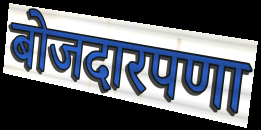
बोजदारपणा